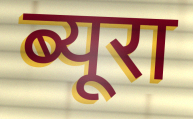
ब्यूरा